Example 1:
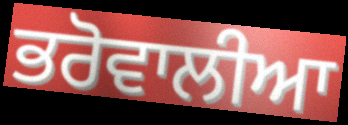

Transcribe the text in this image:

ਭਰੋਵਾਲੀਆ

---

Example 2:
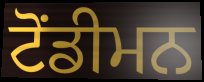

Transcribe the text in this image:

ਟੋਂਡੀਮਨ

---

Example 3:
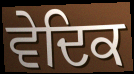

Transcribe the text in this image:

ਵੇਦਿਕ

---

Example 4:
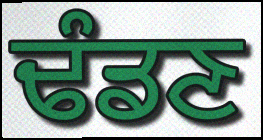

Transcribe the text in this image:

ਢੰਡਣ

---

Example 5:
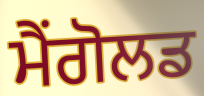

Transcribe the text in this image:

ਮੈਂਗੋਲਡ